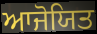
ਆਜੋਯਿਤ